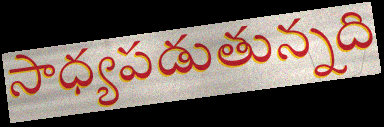
సాధ్యపడుతున్నది